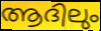
ആദിലും